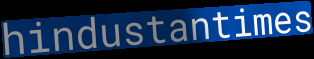
hindustantimes